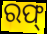
ରଫ୍